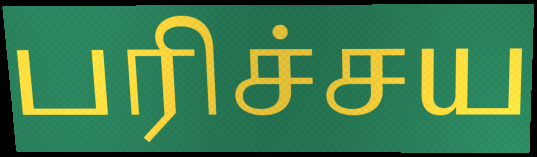
பரிச்சய